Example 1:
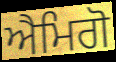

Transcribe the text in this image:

ਐਮਿਗੋ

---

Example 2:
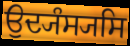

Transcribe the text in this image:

ਉਦ੍ਯੰਸ੍ਯਸਿ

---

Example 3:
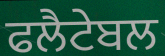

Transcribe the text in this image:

ਫਲੈਟੇਬਲ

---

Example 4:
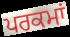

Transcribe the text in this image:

ਪਰਕਮਾਂ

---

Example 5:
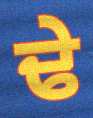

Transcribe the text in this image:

ਢੇ